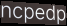
ncpedp